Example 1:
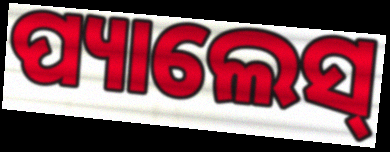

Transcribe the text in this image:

ପ୍ୟାଲେସ୍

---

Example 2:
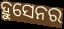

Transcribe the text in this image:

ହୁସେନର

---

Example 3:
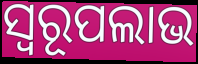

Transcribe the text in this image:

ସ୍ବରୂପଲାଭ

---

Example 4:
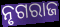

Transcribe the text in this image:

ନୃଗରାଜ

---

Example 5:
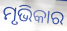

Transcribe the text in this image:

ମୃଭିକାର